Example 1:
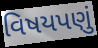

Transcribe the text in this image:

વિષયપણું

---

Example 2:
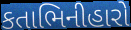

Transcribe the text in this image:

કતાભિનીહારો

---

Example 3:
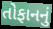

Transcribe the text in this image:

તોફાનનું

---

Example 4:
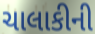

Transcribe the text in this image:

ચાલાકીની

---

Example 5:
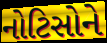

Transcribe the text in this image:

નોટિસોને